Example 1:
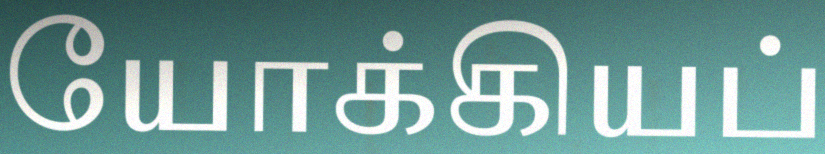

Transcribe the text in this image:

யோக்கியப்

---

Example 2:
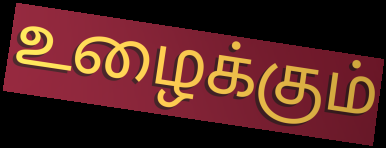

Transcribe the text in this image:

உழைக்கும்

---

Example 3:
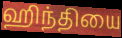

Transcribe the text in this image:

ஹிந்தியை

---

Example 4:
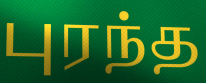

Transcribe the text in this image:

புரந்த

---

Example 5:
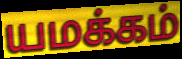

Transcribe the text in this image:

யமக்கம்